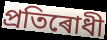
প্ৰতিৰোধী